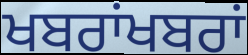
ਖਬਰਾਂਖਬਰਾਂ